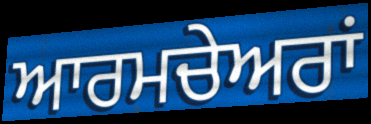
ਆਰਮਚੇਅਰਾਂ